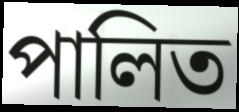
পালিত